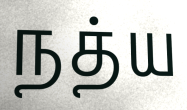
நத்ய